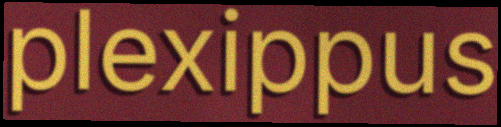
plexippus